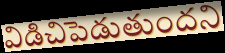
విడిచిపెడుతుందని